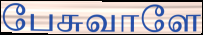
பேசுவாளே